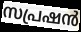
സപ്രഷൻ